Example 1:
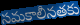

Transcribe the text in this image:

సమకాలీనతకు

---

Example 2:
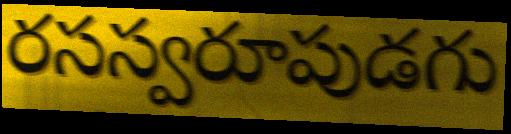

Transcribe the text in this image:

రసస్వరూపుడగు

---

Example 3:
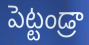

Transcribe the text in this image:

పెట్టండ్రా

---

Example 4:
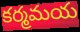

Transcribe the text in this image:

కర్మమయ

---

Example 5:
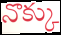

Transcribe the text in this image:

నొక్కు